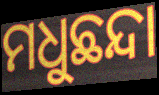
ମଧୁଛନ୍ଦା